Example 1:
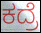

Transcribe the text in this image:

ಕದ್ರೆ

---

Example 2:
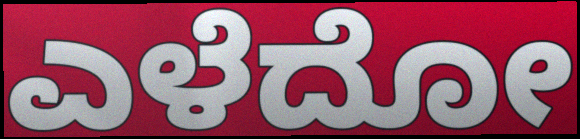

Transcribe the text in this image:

ಎಳೆದೋ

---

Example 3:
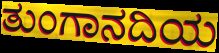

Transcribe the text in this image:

ತುಂಗಾನದಿಯ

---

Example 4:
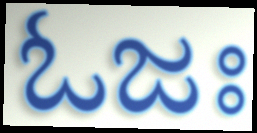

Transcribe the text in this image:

ಓಜಃ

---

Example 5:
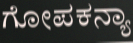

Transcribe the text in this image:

ಗೋಪಕನ್ಯಾ